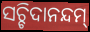
ସଚ୍ଚିଦାନନ୍ଦମ୍